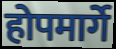
होपमार्गे